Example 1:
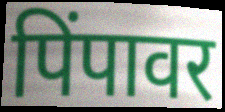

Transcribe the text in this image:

पिंपावर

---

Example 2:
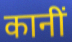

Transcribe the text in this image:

कानीं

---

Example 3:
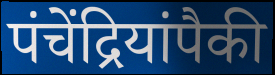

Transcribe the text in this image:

पंचेंद्रियांपैकी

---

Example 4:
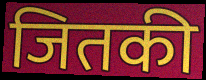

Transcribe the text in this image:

जितकी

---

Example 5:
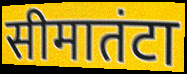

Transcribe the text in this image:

सीमातंटा